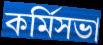
কর্মিসভা